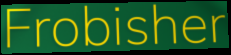
Frobisher